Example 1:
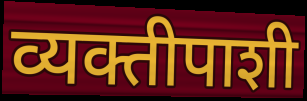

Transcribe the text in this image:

व्यक्तीपाशी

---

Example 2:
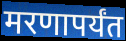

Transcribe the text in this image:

मरणापर्यंत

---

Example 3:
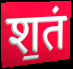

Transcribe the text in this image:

श॒तं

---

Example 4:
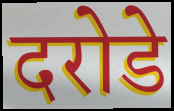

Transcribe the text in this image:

दरोडे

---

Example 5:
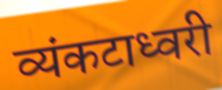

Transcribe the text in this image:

व्यंकटाध्वरी